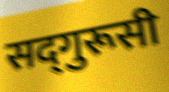
सद्‍गुरूसी